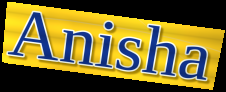
Anisha